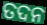
ତଦନ